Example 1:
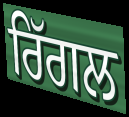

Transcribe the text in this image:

ਰਿੱਗਲ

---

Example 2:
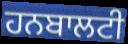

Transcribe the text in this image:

ਹਨਬਾਲਟੀ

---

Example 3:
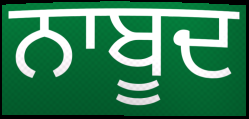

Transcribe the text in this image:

ਨਾਬੂਦ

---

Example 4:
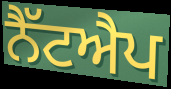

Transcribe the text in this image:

ਨੈੱਟਐਪ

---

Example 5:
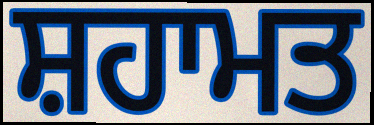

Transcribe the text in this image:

ਸ਼ਹਾਮਤ